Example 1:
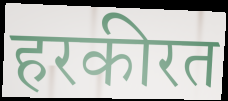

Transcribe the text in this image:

हरकीरत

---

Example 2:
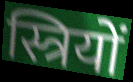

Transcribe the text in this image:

स्त्रियों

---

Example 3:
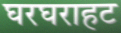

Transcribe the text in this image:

घरघराहट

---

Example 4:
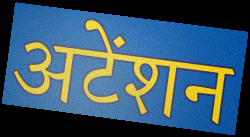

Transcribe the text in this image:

अटेंशन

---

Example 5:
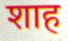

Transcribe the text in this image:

शाह